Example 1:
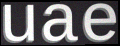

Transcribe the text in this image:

uae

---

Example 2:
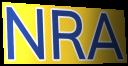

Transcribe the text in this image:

NRA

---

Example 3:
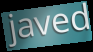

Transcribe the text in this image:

javed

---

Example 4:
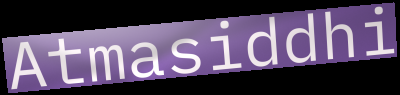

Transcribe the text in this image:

Atmasiddhi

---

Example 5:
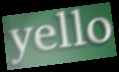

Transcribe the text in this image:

yello